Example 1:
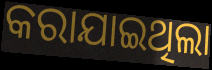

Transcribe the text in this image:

କରାଯାଇଥିଲା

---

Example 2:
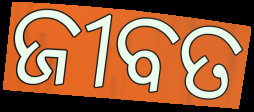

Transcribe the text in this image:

ଜୀବତ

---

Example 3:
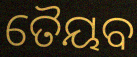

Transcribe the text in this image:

ତୈୟବ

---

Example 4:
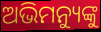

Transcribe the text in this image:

ଅଭିମନ୍ୟୁଙ୍କୁ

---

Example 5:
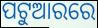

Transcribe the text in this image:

ପଟୁଆରରେ